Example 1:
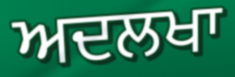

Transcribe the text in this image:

ਅਦਲਖਾ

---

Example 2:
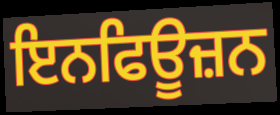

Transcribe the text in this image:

ਇਨਫਿਊਜ਼ਨ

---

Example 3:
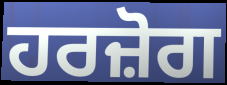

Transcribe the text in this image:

ਹਰਜ਼ੋਗ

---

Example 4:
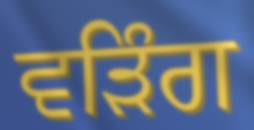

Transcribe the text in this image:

ਵੜਿੰਗ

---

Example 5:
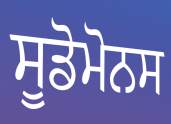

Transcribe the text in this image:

ਸੂਡੋਮੋਨਸ